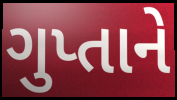
ગુપ્તાને